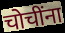
चोचींना